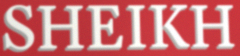
SHEIKH